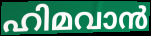
ഹിമവാൻ